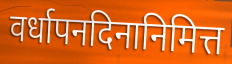
वर्धापनदिनानिमित्त